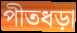
পীতধড়া